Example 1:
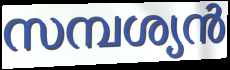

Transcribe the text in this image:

സമ്പശ്യൻ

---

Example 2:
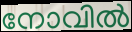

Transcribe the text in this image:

നോവിൽ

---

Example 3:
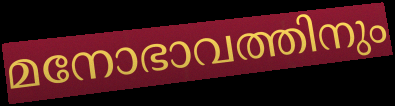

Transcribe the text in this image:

മനോഭാവത്തിനും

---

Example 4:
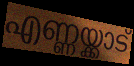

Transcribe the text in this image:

എണ്ണയ്ക്കാട്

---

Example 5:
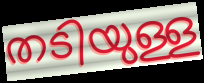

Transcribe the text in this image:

തടിയുള്ള